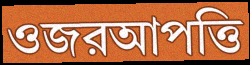
ওজরআপত্তি